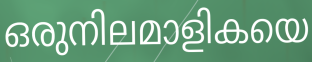
ഒരുനിലമാളികയെ